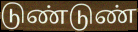
டுண்டுண்